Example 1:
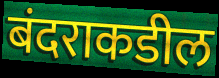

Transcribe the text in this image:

बंदराकडील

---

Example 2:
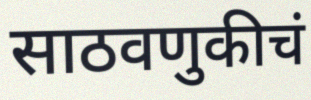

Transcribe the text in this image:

साठवणुकीचं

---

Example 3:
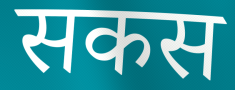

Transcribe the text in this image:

सकस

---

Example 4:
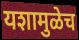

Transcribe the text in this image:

यशामुळेच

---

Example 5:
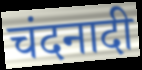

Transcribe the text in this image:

चंदनादी